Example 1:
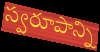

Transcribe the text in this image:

స్వరూపాన్ని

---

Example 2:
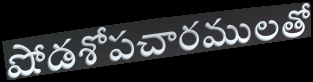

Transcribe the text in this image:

షోడశోపచారములతో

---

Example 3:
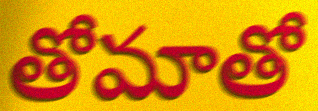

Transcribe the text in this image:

తోమాతో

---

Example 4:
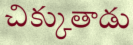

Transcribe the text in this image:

చిక్కుతాడు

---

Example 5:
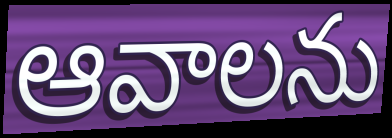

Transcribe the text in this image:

ఆవాలను